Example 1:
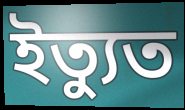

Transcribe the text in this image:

ইত্যুত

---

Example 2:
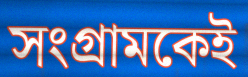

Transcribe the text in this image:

সংগ্রামকেই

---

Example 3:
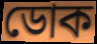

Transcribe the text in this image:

ডোক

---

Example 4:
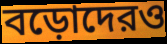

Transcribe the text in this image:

বড়োদেরও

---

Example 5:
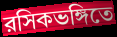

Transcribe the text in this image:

রসিকভঙ্গিতে